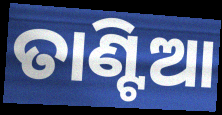
ତାଣ୍ଟିଆ